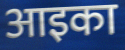
आइका